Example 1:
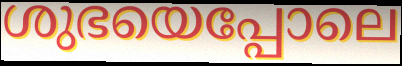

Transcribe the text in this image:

ശുഭയെപ്പോലെ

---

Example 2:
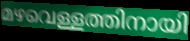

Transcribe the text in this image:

മഴവെള്ളത്തിനായി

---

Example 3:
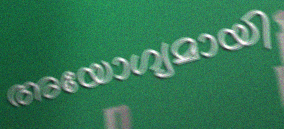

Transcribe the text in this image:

അയോഗ്യമായി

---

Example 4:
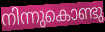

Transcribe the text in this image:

നിന്നുകൊണ്ടു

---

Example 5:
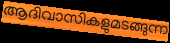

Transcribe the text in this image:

ആദിവാസികളുമടങ്ങുന്ന